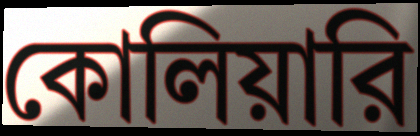
কোলিয়ারি